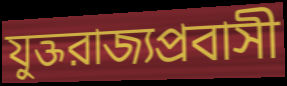
যুক্তরাজ্যপ্রবাসী